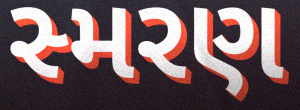
સ્મરણ